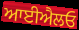
ਆਈਐਲਓ